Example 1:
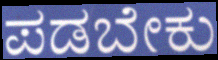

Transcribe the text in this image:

ಪಡಬೇಕು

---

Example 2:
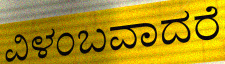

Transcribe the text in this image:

ವಿಳಂಬವಾದರೆ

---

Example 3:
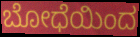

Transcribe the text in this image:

ಬೋಧೆಯಿಂದ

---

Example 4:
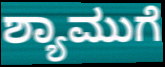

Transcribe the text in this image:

ಶ್ಯಾಮುಗೆ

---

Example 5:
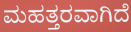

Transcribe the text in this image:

ಮಹತ್ತರವಾಗಿದೆ